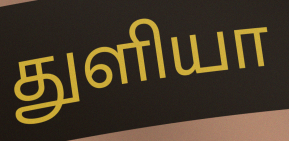
துளியா